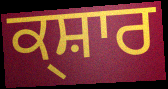
ਕ੍ਸ਼ਾਰ